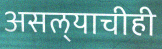
असल्याचीही